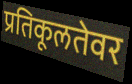
प्रतिकूलतेवर